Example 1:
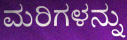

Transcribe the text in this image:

ಮರಿಗಳನ್ನು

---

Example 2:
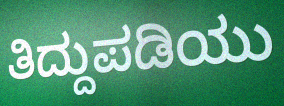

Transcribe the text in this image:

ತಿದ್ದುಪಡಿಯು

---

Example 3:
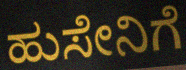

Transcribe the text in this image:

ಹುಸೇನಿಗೆ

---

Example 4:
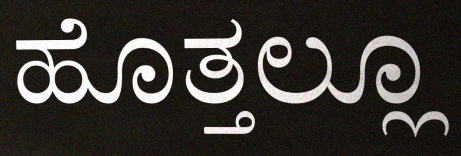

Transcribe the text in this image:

ಹೊತ್ತಲ್ಲೂ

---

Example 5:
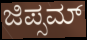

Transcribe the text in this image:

ಜಿಪ್ಸಮ್